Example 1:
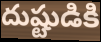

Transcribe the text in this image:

దుష్టుడికి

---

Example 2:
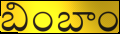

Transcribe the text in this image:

బింబాం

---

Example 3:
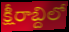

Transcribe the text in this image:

క్షీరాబ్దిలో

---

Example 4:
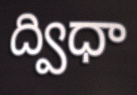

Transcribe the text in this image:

ద్విధా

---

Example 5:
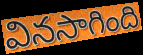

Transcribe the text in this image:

వినసాగింది